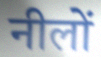
नीलों